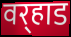
वर्‍हाड